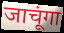
जाचूंगा